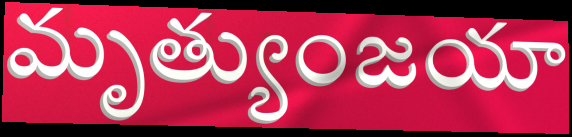
మృత్యుంజయా